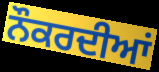
ਨੌਕਰਦੀਆਂ